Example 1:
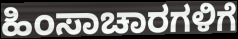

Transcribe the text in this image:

ಹಿಂಸಾಚಾರಗಳಿಗೆ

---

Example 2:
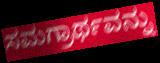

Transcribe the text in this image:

ಸಮಗ್ರಾರ್ಥವನ್ನು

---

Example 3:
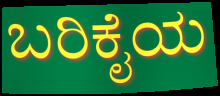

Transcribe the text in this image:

ಬರಿಕೈಯ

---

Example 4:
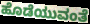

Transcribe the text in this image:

ಹೊಡೆಯುವಂತೆ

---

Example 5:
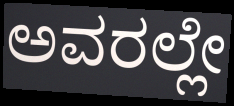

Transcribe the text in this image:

ಅವರಲ್ಲೇ